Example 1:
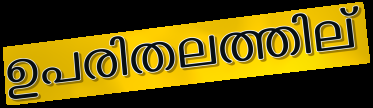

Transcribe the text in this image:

ഉപരിതലത്തില്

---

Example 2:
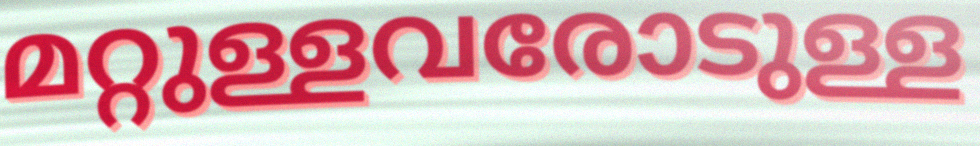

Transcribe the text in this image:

മറ്റുള്ളവരോടുള്ള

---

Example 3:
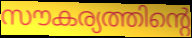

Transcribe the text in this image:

സൗകര്യത്തിന്റെ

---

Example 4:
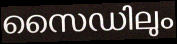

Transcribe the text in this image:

സൈഡിലും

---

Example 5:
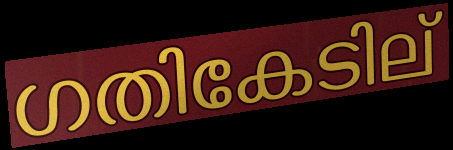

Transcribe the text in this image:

ഗതികേടില്